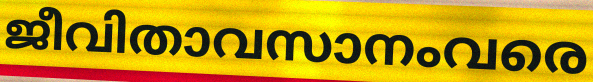
ജീവിതാവസാനംവരെ